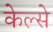
केल्से